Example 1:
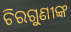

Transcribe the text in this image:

ଚିରଗୁଣୀଙ୍କ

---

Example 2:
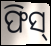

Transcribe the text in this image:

ଫିସ୍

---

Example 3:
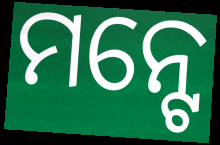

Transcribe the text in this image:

ମନ୍ଟେ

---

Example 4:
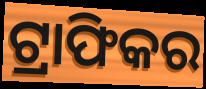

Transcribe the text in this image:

ଟ୍ରାଫିକର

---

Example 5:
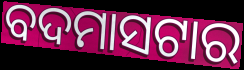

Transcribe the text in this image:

ବଦମାସଟାର